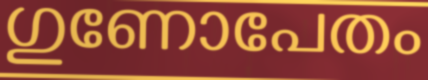
ഗുണോപേതം